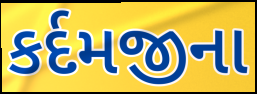
કર્દમજીના